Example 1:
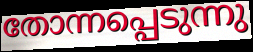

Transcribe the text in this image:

തോന്നപ്പെടുന്നു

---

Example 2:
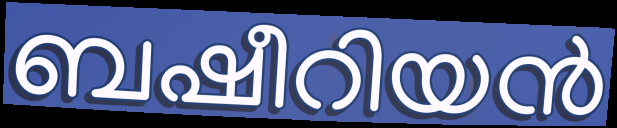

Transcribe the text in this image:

ബഷീറിയൻ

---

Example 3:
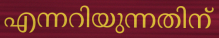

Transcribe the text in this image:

എന്നറിയുന്നതിന്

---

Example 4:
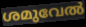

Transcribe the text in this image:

ശമുവേൽ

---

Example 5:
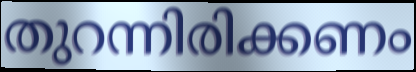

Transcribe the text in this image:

തുറന്നിരിക്കണം